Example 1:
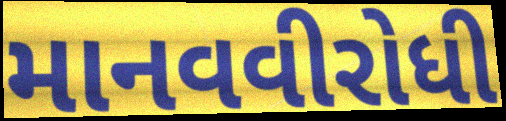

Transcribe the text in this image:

માનવવીરોધી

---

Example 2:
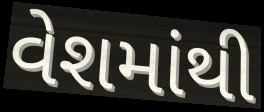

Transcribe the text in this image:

વેશમાંથી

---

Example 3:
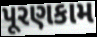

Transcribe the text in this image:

પૂરણકામ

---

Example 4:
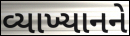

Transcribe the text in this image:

વ્યાખ્યાનને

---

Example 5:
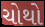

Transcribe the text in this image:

ચોથો